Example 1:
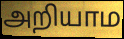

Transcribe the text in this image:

அறியாம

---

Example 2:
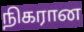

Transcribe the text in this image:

நிகரான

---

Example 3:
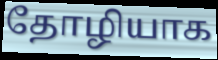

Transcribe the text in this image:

தோழியாக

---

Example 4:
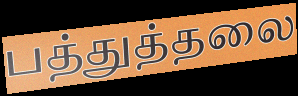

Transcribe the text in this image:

பத்துத்தலை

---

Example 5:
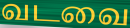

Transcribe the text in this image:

வடவை